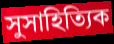
সুসাহিত্যিক